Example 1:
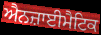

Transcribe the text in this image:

ਐਨਜ਼ਾਈਮੈਟਿਕ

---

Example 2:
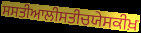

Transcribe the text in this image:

ਸਸਤੀਆਲੀਸਤੀਚਯੇਸਕੀਖ਼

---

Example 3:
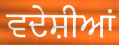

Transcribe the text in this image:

ਵਦੇਸ਼ੀਆਂ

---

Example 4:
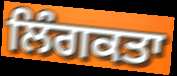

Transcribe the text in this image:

ਲਿੰਗਕਤਾ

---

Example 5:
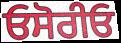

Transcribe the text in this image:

ਓਸੋਰੀਓ